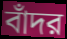
বাঁদর